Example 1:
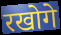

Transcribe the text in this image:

रखोगे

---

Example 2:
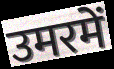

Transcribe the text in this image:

उमरमें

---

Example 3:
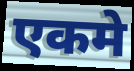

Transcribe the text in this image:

एकमे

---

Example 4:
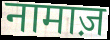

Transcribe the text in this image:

नामाज़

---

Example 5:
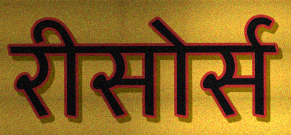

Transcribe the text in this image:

रीसोर्स